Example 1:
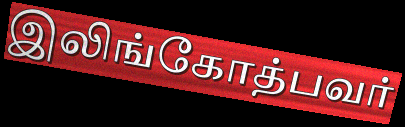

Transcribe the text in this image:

இலிங்கோத்பவர்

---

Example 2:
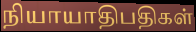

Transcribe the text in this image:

நியாயாதிபதிகள்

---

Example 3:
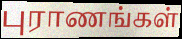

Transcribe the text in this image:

புராணங்கள்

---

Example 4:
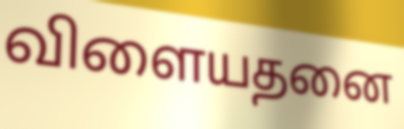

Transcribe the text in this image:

விளையதனை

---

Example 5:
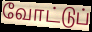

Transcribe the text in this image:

வோட்டுப்